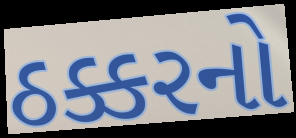
ઠક્કરનો